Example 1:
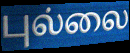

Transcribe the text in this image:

புல்லை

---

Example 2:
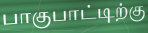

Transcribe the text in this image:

பாகுபாட்டிற்கு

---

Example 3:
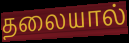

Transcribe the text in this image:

தலையால்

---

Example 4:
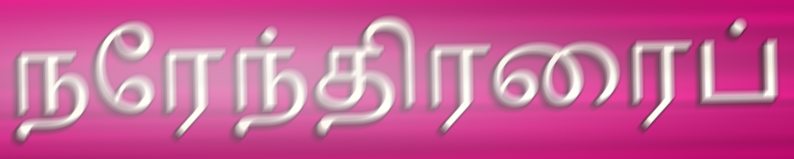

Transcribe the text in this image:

நரேந்திரரைப்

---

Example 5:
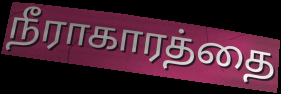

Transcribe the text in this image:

நீராகாரத்தை